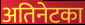
अतिनेटका